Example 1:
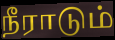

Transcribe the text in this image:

நீராடும்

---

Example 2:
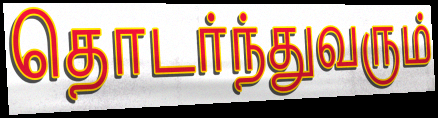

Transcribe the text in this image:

தொடர்ந்துவரும்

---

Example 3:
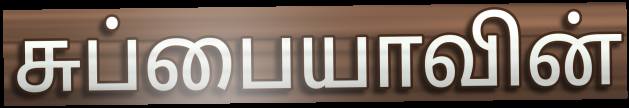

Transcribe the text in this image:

சுப்பையாவின்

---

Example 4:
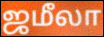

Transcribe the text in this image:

ஜமீலா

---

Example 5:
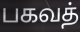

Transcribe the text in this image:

பகவத்